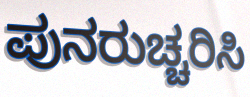
ಪುನರುಚ್ಚರಿಸಿ